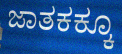
ಜಾತಕಕ್ಕೂ